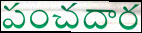
పంచదార